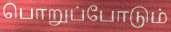
பொறுப்போடும்